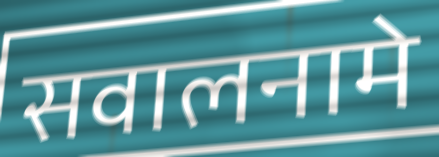
सवालनामे